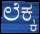
ಲೆಕ್ಕ